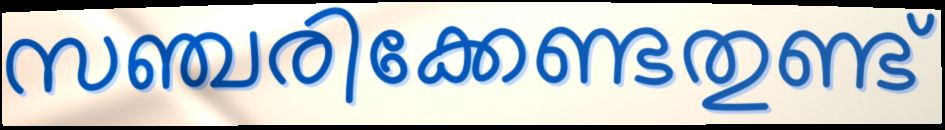
സഞ്ചരിക്കേണ്ടതുണ്ട്